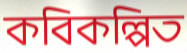
কবিকল্পিত